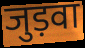
जुड़वा